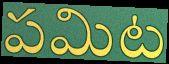
పమిట